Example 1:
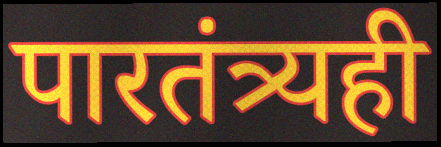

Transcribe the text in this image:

पारतंत्र्यही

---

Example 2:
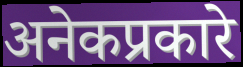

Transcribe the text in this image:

अनेकप्रकारे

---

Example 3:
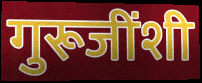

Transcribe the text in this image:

गुरूजींशी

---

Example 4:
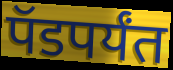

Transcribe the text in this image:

पॅडपर्यंत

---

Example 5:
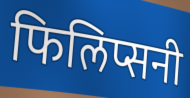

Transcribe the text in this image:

फिलिप्सनी